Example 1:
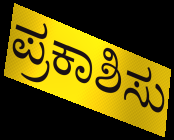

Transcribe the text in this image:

ಪ್ರಕಾಶಿಸು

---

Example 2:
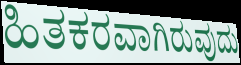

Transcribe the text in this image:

ಹಿತಕರವಾಗಿರುವುದು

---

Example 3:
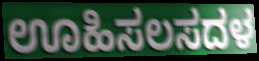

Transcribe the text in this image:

ಊಹಿಸಲಸದಳ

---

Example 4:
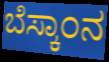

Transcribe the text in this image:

ಬೆಸ್ಕಾಂನ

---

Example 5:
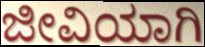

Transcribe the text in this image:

ಜೀವಿಯಾಗಿ